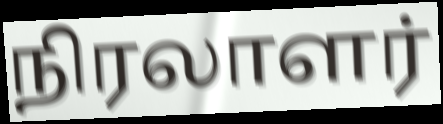
நிரலாளர்